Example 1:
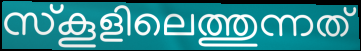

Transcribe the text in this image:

സ്കൂളിലെത്തുന്നത്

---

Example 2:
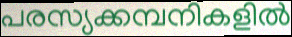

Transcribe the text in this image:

പരസ്യക്കമ്പനികളിൽ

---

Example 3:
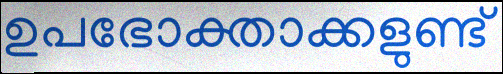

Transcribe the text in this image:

ഉപഭോക്താക്കളുണ്ട്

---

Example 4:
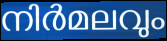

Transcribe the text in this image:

നിർമലവും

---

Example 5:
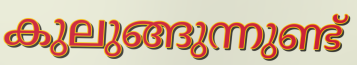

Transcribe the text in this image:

കുലുങ്ങുന്നുണ്ട്